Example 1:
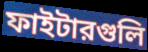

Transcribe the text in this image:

ফাইটারগুলি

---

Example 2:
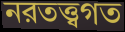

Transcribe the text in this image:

নরতত্ত্বগত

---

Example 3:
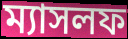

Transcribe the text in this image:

ম্যাসলফ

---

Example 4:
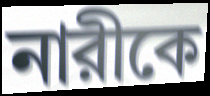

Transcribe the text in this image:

নারীকে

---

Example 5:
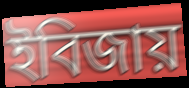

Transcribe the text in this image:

ইবিজায়